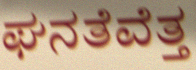
ಘನತೆವೆತ್ತ